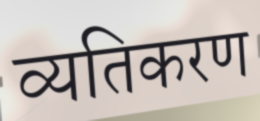
व्यतिकरण